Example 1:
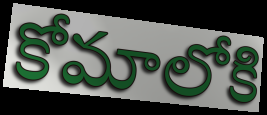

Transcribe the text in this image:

కోమాలోకి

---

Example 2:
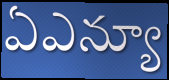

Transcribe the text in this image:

ఏఎన్యూ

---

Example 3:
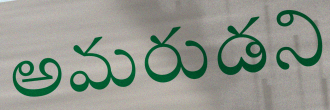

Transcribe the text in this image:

అమరుడని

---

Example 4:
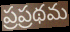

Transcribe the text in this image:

ప్రప్రథమ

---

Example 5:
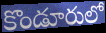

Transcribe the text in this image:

కొండూరులో